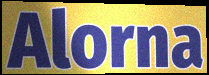
Alorna